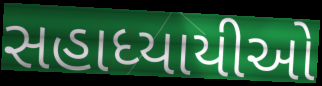
સહાધ્યાયીઓ